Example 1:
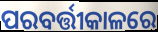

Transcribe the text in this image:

ପରବର୍ତ୍ତୀକାଳରେ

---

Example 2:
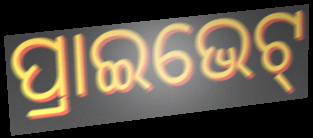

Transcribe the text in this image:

ପ୍ରାଇଭେଟ୍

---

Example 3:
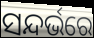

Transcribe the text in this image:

ସନ୍ଦର୍ଭରେ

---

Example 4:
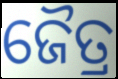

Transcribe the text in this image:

ଜୈତ୍ର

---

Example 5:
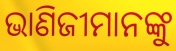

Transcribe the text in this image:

ଭାଣିଜୀମାନଙ୍କୁ